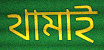
থামাই